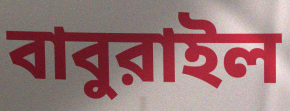
বাবুরাইল